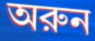
অরুন